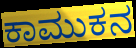
ಕಾಮುಕನ